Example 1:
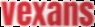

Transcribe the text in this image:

vexans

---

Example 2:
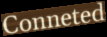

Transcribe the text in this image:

Conneted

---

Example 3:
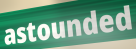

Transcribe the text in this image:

astounded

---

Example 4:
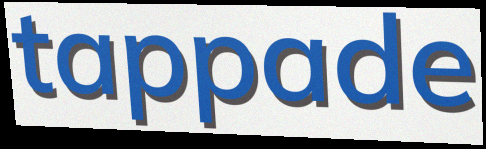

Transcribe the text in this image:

tappade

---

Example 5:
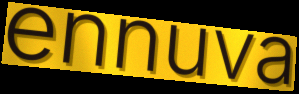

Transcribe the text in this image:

ennuva